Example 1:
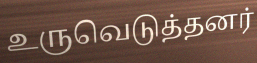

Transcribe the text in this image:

உருவெடுத்தனர்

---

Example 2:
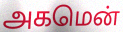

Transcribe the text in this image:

அகமென்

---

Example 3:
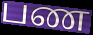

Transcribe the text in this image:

பண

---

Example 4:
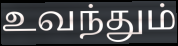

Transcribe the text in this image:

உவந்தும்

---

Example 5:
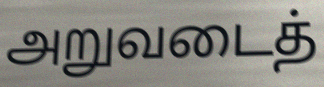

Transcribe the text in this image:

அறுவடைத்